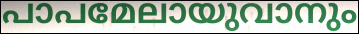
പാപമേലായുവാനും